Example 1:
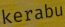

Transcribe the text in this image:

kerabu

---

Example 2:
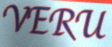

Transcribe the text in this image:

VERU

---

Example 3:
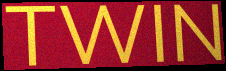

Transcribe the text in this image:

TWIN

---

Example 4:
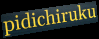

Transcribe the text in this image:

pidichiruku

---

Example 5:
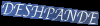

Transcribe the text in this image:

DESHPANDE